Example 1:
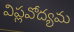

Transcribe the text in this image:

విప్లవోద్యమ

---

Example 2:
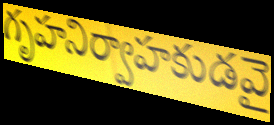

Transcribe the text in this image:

గృహనిర్వాహకుడవై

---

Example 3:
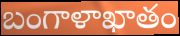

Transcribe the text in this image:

బంగాళాఖాతం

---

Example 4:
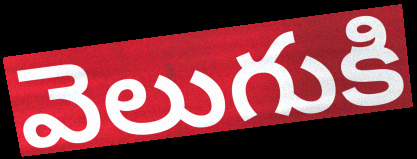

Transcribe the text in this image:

వెలుగుకి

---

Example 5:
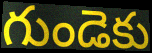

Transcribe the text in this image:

గుండెకు